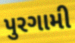
પુરગામી